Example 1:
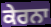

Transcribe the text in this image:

ਕੇਰਨਾ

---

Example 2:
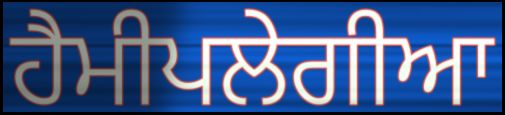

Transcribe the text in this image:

ਹੈਮੀਪਲੇਗੀਆ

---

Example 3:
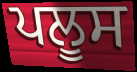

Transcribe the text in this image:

ਪਲੂਸ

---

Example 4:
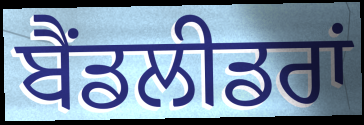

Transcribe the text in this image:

ਬੈਂਡਲੀਡਰਾਂ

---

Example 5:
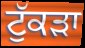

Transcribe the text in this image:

ਟੁੱਕੜਾ